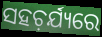
ସହଚ଼ର୍ଯ୍ୟରେ